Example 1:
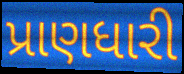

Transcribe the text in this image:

પ્રાણધારી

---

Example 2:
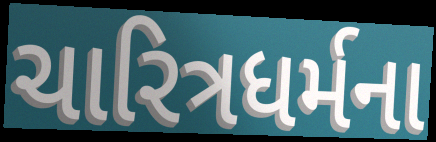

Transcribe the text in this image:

ચારિત્રધર્મના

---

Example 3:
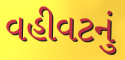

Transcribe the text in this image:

વહીવટનું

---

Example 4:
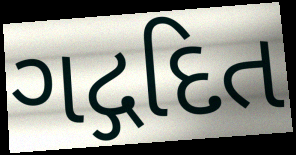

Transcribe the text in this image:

ગદ્ગદિત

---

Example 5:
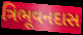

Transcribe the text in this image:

ત્રિભૂવનદાસ